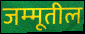
जम्मूतील